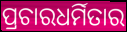
ପ୍ରଚାରଧର୍ମିତାର